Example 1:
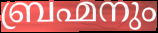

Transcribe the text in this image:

ബ്രഹ്മനും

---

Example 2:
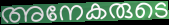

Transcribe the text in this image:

അനേകരുടെ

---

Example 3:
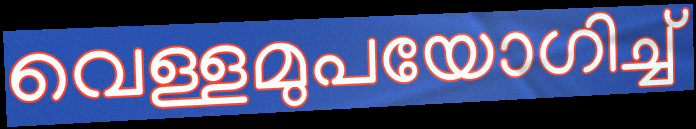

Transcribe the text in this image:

വെള്ളമുപയോഗിച്ച്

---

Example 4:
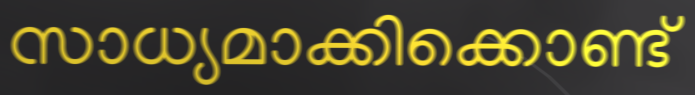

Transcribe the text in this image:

സാധ്യമാക്കിക്കൊണ്ട്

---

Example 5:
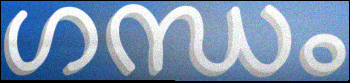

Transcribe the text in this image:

ഗന്ധം